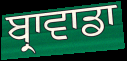
ਬ੍ਰਾਵਾਡਾ